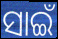
ସାଇଁ